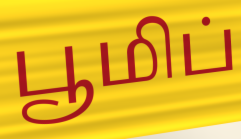
பூமிப்